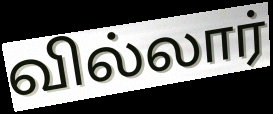
வில்லார்